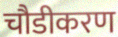
चौडीकरण